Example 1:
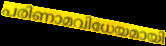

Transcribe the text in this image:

പരിണാമവിധേയമായി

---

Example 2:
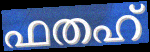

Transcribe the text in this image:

ഫതഹ്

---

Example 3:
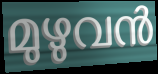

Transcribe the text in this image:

മുഴുവൻ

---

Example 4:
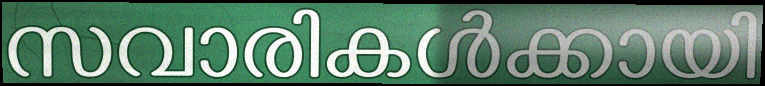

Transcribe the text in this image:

സവാരികൾക്കായി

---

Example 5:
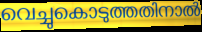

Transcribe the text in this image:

വെച്ചുകൊടുത്തതിനാൽ